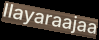
Ilayaraajaa